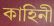
কাহিনী